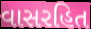
વાસરહિત